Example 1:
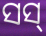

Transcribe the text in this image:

ସସ୍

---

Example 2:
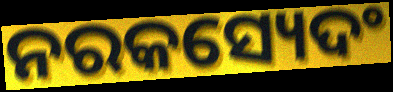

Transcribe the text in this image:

ନରକସ୍ୟେଦଂ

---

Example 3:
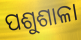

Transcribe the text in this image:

ପଶୁଶାଳା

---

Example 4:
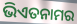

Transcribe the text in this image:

ଭିଏତନାମର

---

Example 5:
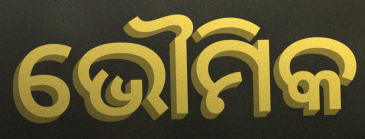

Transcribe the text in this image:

ଭୌମିକ